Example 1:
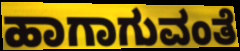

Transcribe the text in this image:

ಹಾಗಾಗುವಂತೆ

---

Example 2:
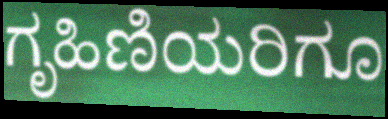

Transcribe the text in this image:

ಗೃಹಿಣಿಯರಿಗೂ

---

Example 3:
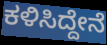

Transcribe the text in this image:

ಕಳಿಸಿದ್ದೇನೆ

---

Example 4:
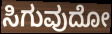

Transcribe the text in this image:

ಸಿಗುವುದೋ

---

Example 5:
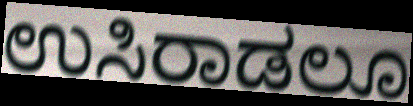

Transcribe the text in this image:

ಉಸಿರಾಡಲೂ